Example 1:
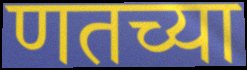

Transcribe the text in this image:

णतच्या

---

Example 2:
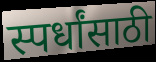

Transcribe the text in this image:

स्पर्धांसाठी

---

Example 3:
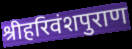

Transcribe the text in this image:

श्रीहरिवंशपुराण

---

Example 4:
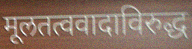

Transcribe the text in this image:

मूलतत्ववादाविरुद्ध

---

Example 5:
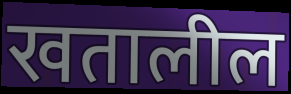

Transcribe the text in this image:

खतालील